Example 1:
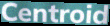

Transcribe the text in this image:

Centroid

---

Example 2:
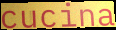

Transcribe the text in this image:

cucina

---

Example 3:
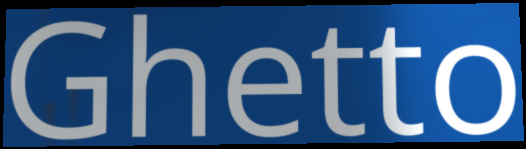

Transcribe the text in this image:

Ghetto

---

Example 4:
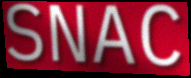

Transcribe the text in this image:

SNAC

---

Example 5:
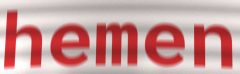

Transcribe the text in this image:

hemen